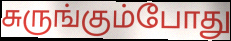
சுருங்கும்போது